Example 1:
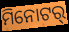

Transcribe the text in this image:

ମିନୋଟର୍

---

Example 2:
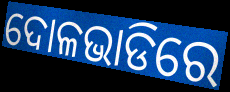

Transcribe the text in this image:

ଦୋଳଭାଡିରେ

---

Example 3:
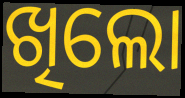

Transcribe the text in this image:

ଖିଲୋ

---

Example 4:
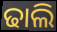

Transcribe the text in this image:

ଢାଲି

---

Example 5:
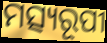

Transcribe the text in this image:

ମତ୍ସ୍ୟରୂପୀ